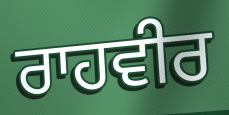
ਰਾਹਵੀਰ